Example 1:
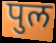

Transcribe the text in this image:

पुल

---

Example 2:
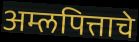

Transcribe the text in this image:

अम्लपित्ताचे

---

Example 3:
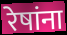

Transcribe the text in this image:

रेषांना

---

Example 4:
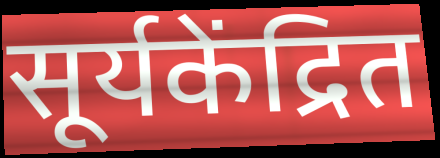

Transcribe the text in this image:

सूर्यकेंद्रित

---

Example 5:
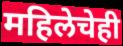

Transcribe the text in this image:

महिलेचेही